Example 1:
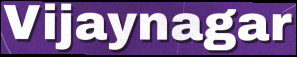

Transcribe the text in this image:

Vijaynagar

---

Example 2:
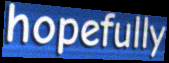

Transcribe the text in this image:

hopefully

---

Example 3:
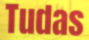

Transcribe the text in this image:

Tudas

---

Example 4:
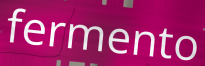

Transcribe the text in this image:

fermento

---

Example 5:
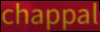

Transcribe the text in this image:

chappal